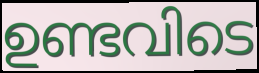
ഉണ്ടവിടെ